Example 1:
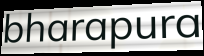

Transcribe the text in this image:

bharapura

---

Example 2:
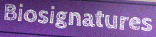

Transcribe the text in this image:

Biosignatures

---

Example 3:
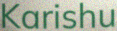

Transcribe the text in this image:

Karishu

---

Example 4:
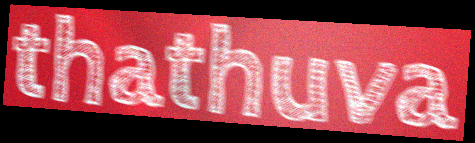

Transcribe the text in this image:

thathuva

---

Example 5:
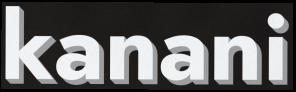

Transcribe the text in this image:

kanani